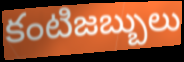
కంటిజబ్బులు